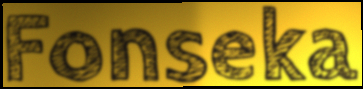
Fonseka